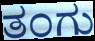
ತಂಗು